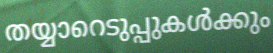
തയ്യാറെടുപ്പുകൾക്കും